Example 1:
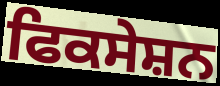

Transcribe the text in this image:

ਫਿਕਸੇਸ਼ਨ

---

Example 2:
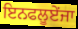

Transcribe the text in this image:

ਇਨਫਲੂਏਂਜਾ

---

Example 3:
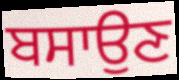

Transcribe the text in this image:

ਬਸਾਉਣ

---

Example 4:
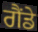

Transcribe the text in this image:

ਗੈਂਡੇ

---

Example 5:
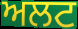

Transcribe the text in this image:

ਅਲਟ